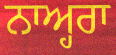
ਨਾਅ੍ਹਰਾ